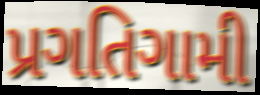
પ્રગતિગામી